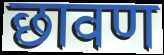
छावण